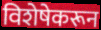
विशेषेकरून